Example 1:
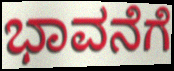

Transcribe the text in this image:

ಭಾವನೆಗೆ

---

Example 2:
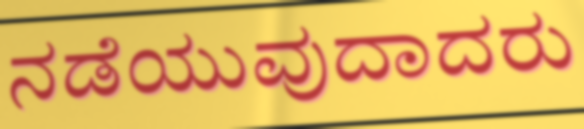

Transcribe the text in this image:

ನಡೆಯುವುದಾದರು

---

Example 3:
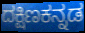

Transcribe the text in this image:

ದಕ್ಷಿಣಕನ್ನಡ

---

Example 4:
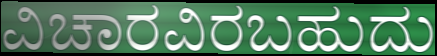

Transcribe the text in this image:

ವಿಚಾರವಿರಬಹುದು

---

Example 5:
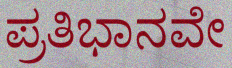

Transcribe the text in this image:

ಪ್ರತಿಭಾನವೇ